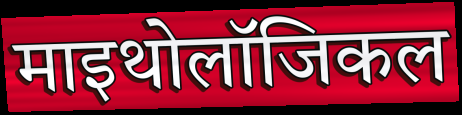
माइथोलॉजिकल